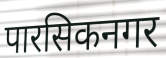
पारसिकनगर